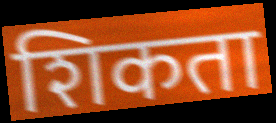
शिकता